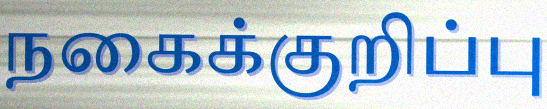
நகைக்குறிப்பு